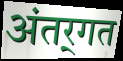
अंतर्गत